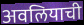
अवलियाची